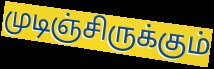
முடிஞ்சிருக்கும்